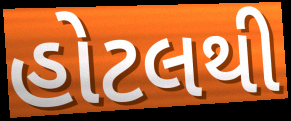
હોટલથી